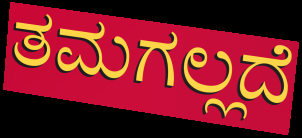
ತಮಗಲ್ಲದೆ